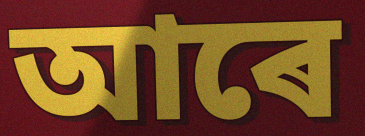
আৰে